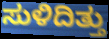
ಸುಳಿದಿತ್ತು